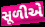
સૂળીએ